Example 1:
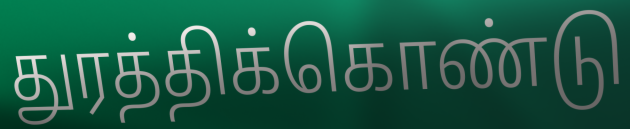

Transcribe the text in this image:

துரத்திக்கொண்டு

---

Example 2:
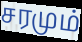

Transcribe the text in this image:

சரமும்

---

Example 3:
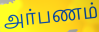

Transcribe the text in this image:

அர்பணம்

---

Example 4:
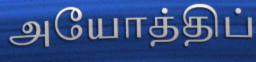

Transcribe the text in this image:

அயோத்திப்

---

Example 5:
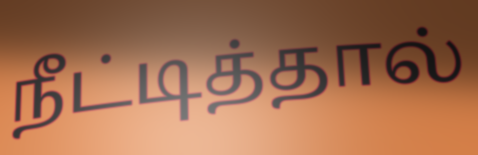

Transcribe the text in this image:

நீட்டித்தால்